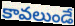
కావలుండే